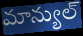
మాన్యుల్